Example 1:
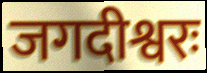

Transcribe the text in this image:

जगदीश्वरः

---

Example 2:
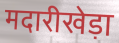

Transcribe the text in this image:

मदारीखेड़ा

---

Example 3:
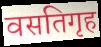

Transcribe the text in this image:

वसतिगृह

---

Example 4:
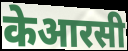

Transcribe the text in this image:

केआरसी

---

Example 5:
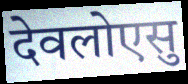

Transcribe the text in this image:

देवलोएसु